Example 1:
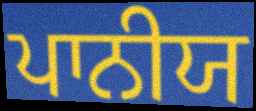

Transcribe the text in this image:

ਪਾਨੀਯ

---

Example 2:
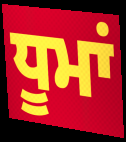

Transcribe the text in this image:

ਧੂਮਾਂ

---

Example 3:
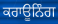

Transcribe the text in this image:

ਕਰਾਊਨਿੰਗ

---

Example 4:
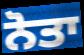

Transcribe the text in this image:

ਨੋਤਾ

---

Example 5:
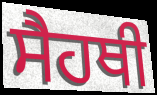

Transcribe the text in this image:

ਸੈਹਥੀ